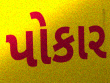
પોકાર